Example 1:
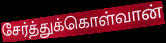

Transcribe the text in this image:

சேர்த்துக்கொள்வான்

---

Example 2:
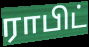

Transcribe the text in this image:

ராபிட்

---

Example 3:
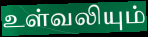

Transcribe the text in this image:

உள்வலியும்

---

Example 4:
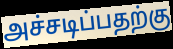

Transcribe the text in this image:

அச்சடிப்பதற்கு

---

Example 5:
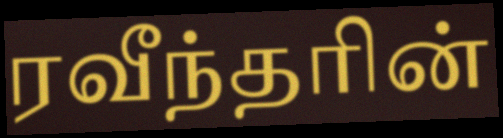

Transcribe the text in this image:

ரவீந்தரின்